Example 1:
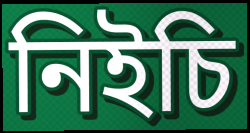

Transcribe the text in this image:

নিইচি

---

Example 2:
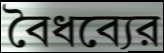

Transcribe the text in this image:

বৈধব্যের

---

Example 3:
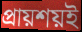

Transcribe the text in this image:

প্রায়শয়ই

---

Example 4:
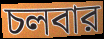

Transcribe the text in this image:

চলবার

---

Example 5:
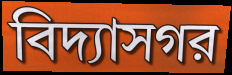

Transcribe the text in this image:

বিদ্যাসগর